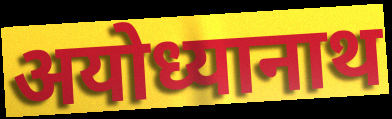
अयोध्यानाथ